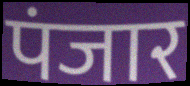
पंजार